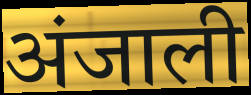
अंजाली